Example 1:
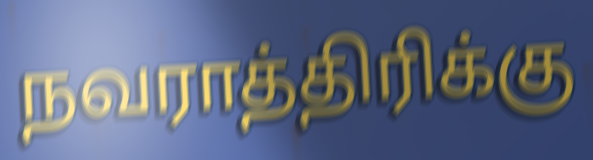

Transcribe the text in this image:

நவராத்திரிக்கு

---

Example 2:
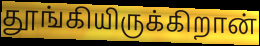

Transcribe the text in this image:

தூங்கியிருக்கிறான்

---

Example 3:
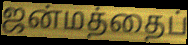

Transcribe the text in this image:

ஜன்மத்தைப்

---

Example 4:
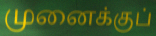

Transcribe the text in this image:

முனைக்குப்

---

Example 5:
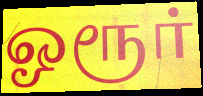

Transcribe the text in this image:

ஓரூர்